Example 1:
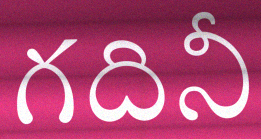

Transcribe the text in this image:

గదినీ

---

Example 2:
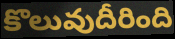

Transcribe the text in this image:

కొలువుదీరింది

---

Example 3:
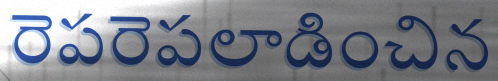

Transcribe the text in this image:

రెపరెపలాడించిన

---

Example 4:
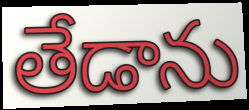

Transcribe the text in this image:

తేడాను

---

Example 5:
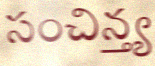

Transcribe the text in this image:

సంచిన్త్య